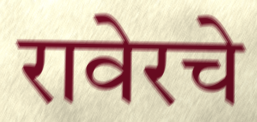
रावेरचे